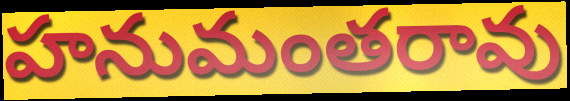
హనుమంతరావు